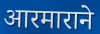
आरमाराने